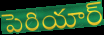
పెరియార్